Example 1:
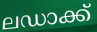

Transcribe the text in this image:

ലഡാക്ക്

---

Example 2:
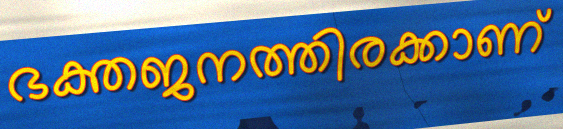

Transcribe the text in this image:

ഭക്തജനത്തിരക്കാണ്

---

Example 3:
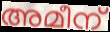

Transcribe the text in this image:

അമീന്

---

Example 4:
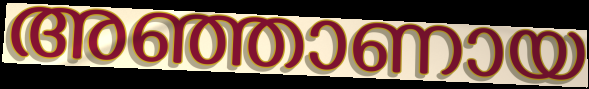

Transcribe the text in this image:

അഞ്ഞാണായ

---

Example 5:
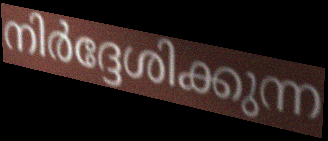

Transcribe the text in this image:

നിർദ്ദേശിക്കുന്ന